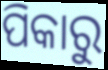
ପିକାରୁ